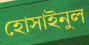
হোসাইনুল